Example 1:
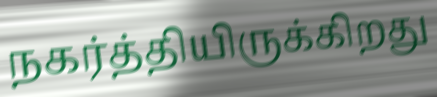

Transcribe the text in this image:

நகர்த்தியிருக்கிறது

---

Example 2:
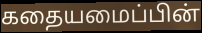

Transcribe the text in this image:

கதையமைப்பின்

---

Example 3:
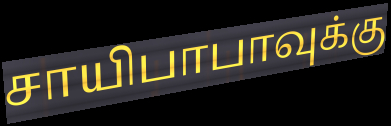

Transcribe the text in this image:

சாயிபாபாவுக்கு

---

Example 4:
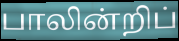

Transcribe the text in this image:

பாலின்றிப்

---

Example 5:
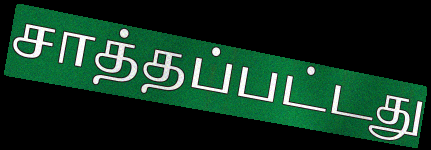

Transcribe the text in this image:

சாத்தப்பட்டது